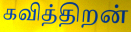
கவித்திறன்